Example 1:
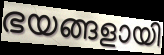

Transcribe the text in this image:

ഭയങ്ങളായി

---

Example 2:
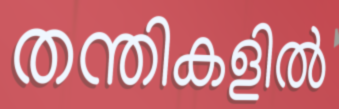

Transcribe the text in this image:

തന്തികളിൽ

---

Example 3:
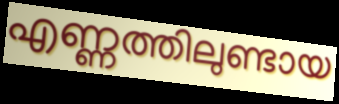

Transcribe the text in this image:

എണ്ണത്തിലുണ്ടായ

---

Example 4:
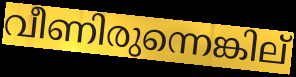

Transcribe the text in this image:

വീണിരുന്നെങ്കില്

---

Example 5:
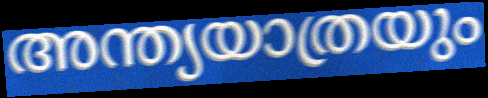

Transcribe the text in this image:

അന്ത്യയാത്രയും